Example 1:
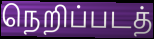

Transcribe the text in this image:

நெறிப்படத்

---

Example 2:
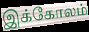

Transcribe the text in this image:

இக்கோலம்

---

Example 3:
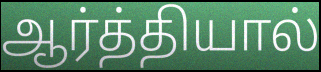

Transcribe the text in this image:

ஆர்த்தியால்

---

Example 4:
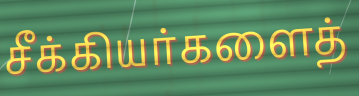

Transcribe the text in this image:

சீக்கியர்களைத்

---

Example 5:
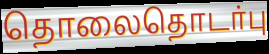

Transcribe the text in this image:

தொலைதொடர்பு